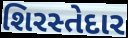
શિરસ્તેદાર